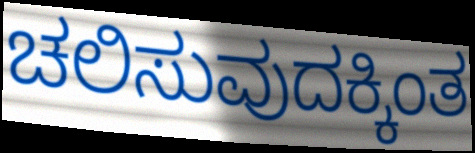
ಚಲಿಸುವುದಕ್ಕಿಂತ